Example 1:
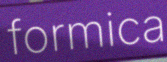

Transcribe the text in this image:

formica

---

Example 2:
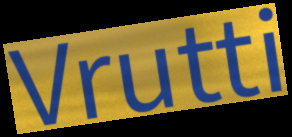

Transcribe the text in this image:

Vrutti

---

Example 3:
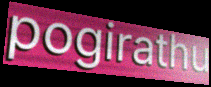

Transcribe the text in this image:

pogirathu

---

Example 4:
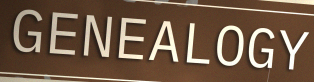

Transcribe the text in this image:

GENEALOGY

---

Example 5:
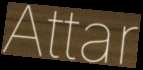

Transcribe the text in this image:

Attar